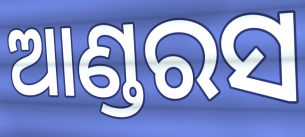
ଆଣ୍ଡରସ